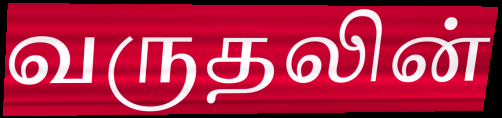
வருதலின்